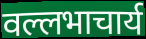
वल्लभाचार्य